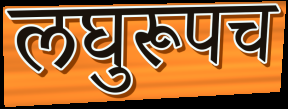
लघुरूपच